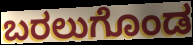
ಬರಲುಗೊಂಡ